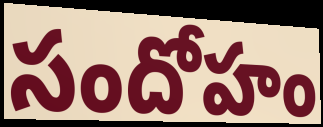
సందోహం